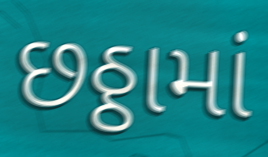
છઠ્ઠામાં